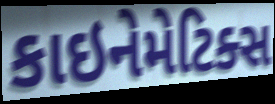
કાઇનેમેટિક્સ